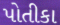
પોતીકા